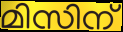
മിസിന്